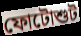
ফোটোশুট